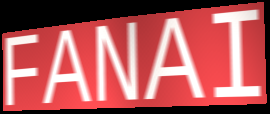
FANAI